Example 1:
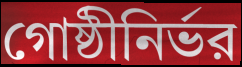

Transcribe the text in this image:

গোষ্ঠীনির্ভর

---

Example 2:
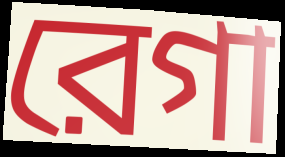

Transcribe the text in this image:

রেগা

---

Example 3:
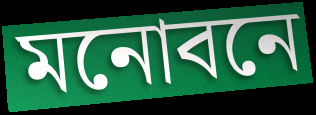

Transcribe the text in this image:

মনোবনে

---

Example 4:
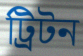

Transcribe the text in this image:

ট্রিটন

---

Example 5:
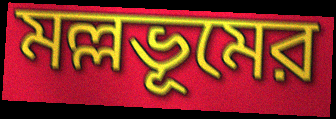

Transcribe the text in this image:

মল্লভূমের